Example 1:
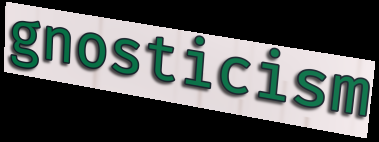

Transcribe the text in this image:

gnosticism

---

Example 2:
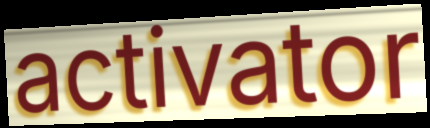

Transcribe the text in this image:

activator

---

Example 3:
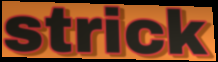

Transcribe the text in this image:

strick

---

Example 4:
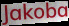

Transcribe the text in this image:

Jakoba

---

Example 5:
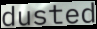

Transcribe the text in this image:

dusted